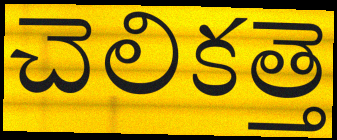
చెలికత్తె